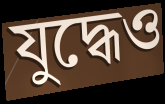
যুদ্ধেও